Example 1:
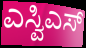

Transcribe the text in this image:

ಎಸ್ವಿಎಸ್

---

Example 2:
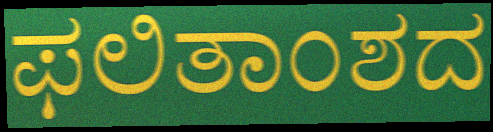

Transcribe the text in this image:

ಫಲಿತಾಂಶದ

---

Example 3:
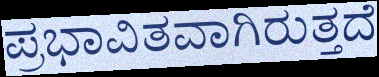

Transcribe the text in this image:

ಪ್ರಭಾವಿತವಾಗಿರುತ್ತದೆ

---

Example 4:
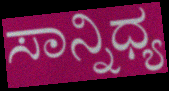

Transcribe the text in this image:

ಸಾನ್ನಿಧ್ಯ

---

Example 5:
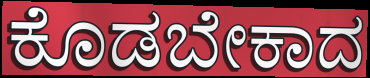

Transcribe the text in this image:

ಕೊಡಬೇಕಾದ